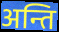
अन्ति